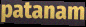
patanam